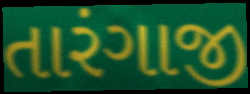
તારંગાજી